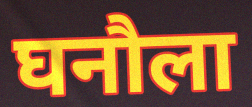
घनौला